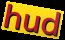
hud